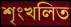
শৃংখলিত